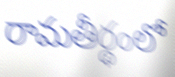
రామతీర్థంలో